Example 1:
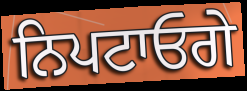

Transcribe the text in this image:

ਨਿਪਟਾਓਗੇ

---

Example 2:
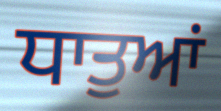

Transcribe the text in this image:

ਧਾਤੁਆਂ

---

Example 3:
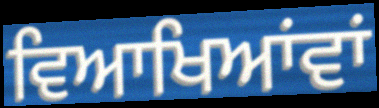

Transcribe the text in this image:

ਵਿਆਖਿਆਂਵਾਂ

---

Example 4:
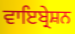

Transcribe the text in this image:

ਵਾਇਬ੍ਰੇਸ਼ਨ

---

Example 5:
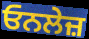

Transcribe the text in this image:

ਓਨਲੇਜ਼